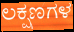
ಲಕ್ಷಣಗಳ